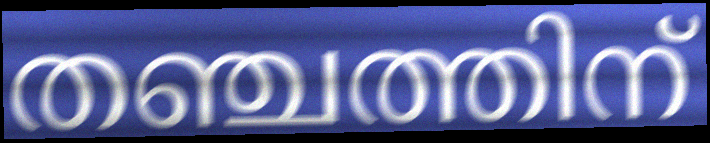
തഞ്ചത്തിന്